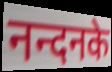
नन्दनके